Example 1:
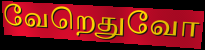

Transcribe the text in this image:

வேறெதுவோ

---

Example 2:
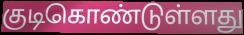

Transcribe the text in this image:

குடிகொண்டுள்ளது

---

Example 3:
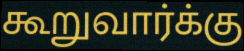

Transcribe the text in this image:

கூறுவார்க்கு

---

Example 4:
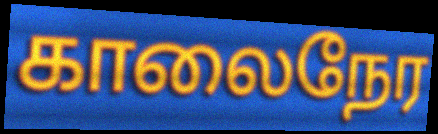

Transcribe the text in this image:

காலைநேர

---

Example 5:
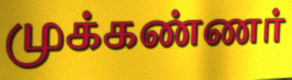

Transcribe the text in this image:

முக்கண்ணர்